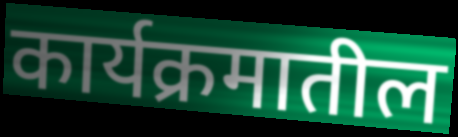
कार्यक्रमातील